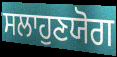
ਸਲਾਹੁਣਯੋਗ